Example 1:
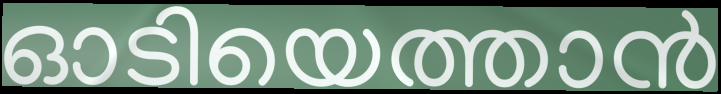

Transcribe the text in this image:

ഓടിയെത്താൻ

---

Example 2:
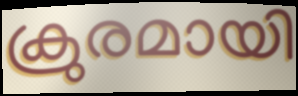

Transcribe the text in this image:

ക്രുരമായി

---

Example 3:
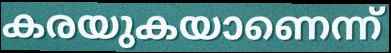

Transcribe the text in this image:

കരയുകയാണെന്ന്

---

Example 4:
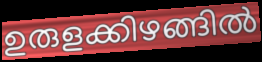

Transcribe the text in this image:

ഉരുളക്കിഴങ്ങിൽ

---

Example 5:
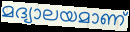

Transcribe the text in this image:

മദ്യാലയമാണ്